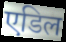
एडिल